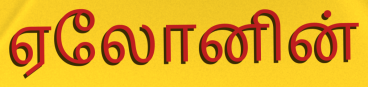
ஏலோனின்